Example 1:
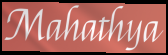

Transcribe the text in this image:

Mahathya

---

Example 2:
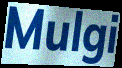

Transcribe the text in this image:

Mulgi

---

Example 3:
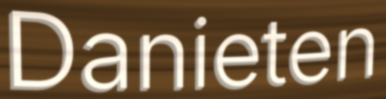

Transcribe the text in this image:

Danieten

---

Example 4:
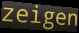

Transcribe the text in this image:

zeigen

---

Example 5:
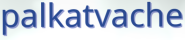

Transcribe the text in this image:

palkatvache